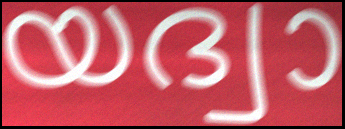
യദ്വാ